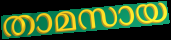
താമസായ